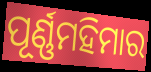
ପୂର୍ଣ୍ଣମହିମାର